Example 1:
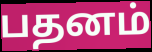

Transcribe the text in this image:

பதனம்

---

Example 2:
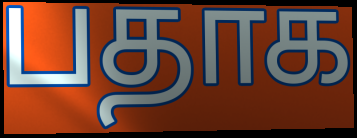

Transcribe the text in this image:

பதாக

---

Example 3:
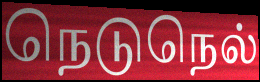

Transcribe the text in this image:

நெடுநெல்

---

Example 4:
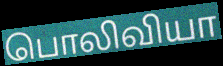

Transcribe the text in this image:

பொலிவியா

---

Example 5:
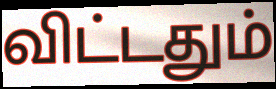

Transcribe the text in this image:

விட்டதும்